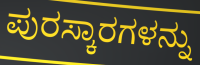
ಪುರಸ್ಕಾರಗಳನ್ನು